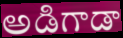
అడిగాడా